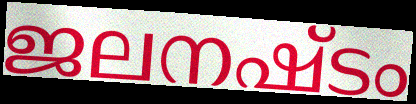
ജലനഷ്ടം